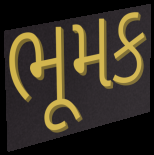
ભૂમક